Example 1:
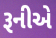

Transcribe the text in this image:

રૂનીએ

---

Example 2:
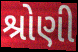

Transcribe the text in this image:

શ્રોણી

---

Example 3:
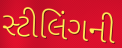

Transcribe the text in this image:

સ્ટીલિંગની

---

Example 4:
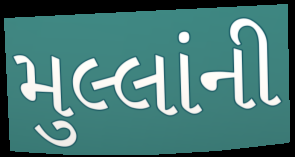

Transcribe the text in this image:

મુલ્લાંની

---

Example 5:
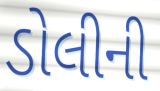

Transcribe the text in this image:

ડોલીની